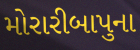
મોરારીબાપુના